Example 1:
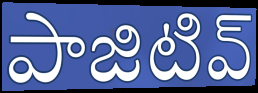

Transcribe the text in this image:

పాజిటివ్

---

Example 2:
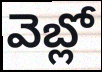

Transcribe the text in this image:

వెబ్లో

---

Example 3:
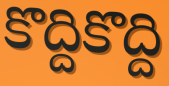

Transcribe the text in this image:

కొద్దికొద్ది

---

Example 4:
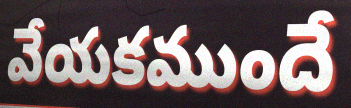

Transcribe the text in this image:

వేయకముందే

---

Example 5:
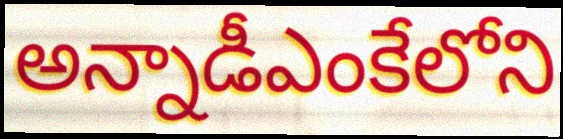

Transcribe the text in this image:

అన్నాడీఎంకేలోని